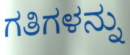
ಗತಿಗಳನ್ನು